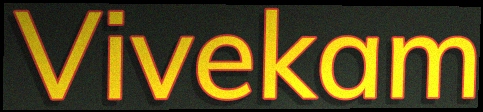
Vivekam